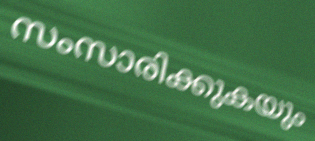
സംസാരിക്കുകയും